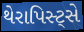
થેરાપિસ્ટ્સે